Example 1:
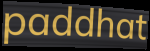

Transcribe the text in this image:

paddhat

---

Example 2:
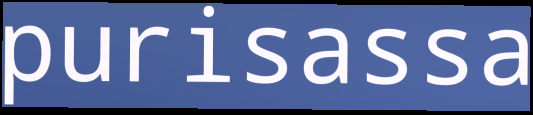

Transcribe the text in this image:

purisassa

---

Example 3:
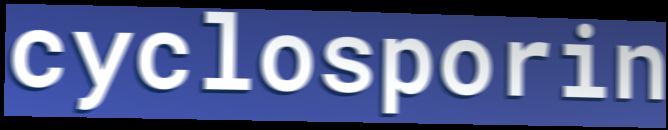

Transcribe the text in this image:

cyclosporin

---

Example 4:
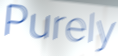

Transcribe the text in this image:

Purely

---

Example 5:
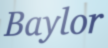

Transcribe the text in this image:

Baylor